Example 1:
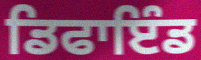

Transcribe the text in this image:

ਡਿਫਾਇੰਡ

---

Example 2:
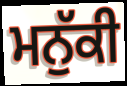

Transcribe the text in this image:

ਮਨੁੱਕੀ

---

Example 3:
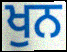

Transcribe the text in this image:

ਖੁਨ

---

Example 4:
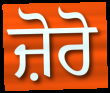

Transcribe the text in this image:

ਜ਼ੋਰੋ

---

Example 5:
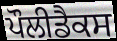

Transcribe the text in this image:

ਪੌਲੀਡੈਕਸ